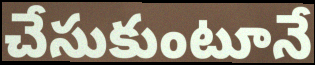
చేసుకుంటూనే